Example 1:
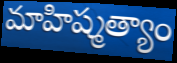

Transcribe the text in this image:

మాహిష్మత్యాం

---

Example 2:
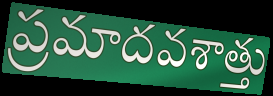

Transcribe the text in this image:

ప్రమాదవశాత్తు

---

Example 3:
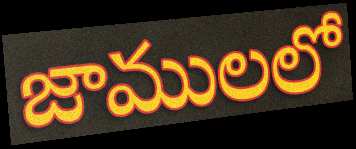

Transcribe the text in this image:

జాములలో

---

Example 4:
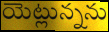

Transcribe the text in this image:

యెట్లున్నను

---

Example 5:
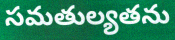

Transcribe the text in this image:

సమతుల్యతను